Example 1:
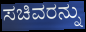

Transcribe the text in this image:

ಸಚಿವರನ್ನು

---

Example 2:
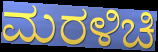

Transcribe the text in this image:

ಮರಳಿಚಿ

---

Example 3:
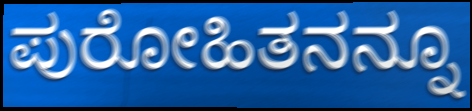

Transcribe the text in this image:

ಪುರೋಹಿತನನ್ನೂ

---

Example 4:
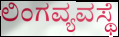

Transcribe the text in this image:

ಲಿಂಗವ್ಯವಸ್ಥೆ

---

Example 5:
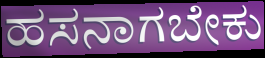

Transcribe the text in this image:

ಹಸನಾಗಬೇಕು